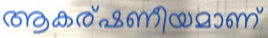
ആകര്ഷണീയമാണ്